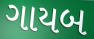
ગાયબ